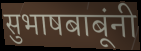
सुभाषबाबूंनी